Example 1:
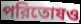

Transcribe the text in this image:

পরিতোষও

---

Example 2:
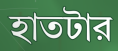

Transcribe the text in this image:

হাতটার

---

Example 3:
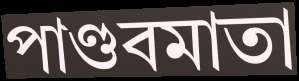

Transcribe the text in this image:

পাণ্ডবমাতা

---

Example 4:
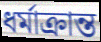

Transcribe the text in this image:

ধর্মাক্রান্ত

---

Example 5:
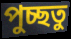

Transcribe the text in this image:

পুচ্ছতু